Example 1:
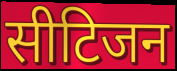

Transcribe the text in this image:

सीटिजन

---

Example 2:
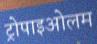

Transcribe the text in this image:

ट्रोपाइओलम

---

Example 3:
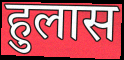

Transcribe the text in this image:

हुलास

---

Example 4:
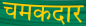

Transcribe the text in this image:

चमकदार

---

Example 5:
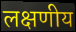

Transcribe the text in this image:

लक्षणीय